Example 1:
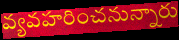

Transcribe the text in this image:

వ్యవహరించనున్నారు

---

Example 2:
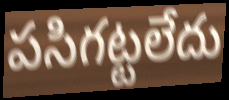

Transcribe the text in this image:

పసిగట్టలేదు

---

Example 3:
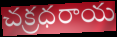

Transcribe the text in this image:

చక్రధరాయ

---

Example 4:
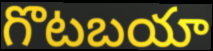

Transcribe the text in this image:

గొటబయా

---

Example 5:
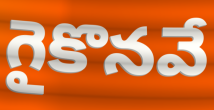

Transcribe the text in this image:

గైకొనవే